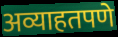
अव्याहतपणे